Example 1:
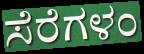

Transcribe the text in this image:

ಸೆರೆಗಳಂ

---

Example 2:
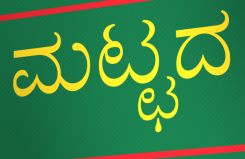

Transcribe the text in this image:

ಮಟ್ಟದ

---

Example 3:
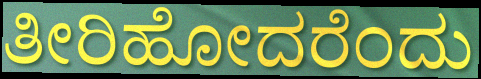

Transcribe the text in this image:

ತೀರಿಹೋದರೆಂದು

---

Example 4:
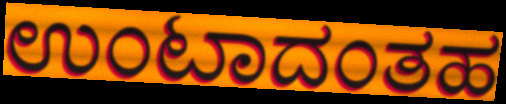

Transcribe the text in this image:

ಉಂಟಾದಂತಹ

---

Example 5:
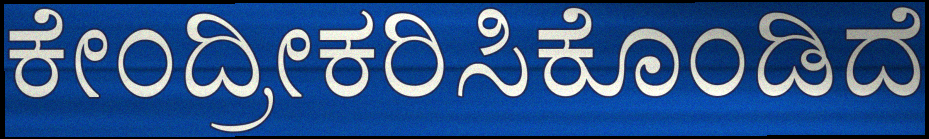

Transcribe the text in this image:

ಕೇಂದ್ರೀಕರಿಸಿಕೊಂಡಿದೆ